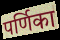
पर्णिका